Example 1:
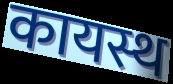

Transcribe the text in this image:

कायस्थ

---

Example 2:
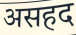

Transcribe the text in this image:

असहद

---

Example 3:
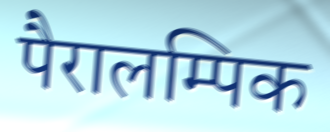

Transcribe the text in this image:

पैरालम्पिक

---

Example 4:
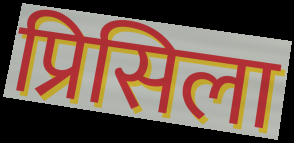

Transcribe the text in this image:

प्रिसिला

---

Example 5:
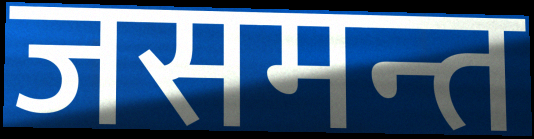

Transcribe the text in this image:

जसमन्त